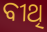
ବୀଥି